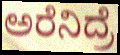
ಅರೆನಿದ್ರೆ